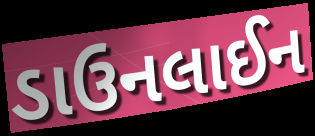
ડાઉનલાઈન